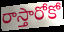
రాస్తారోకో